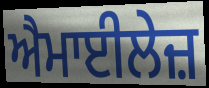
ਐਮਾਈਲੇਜ਼